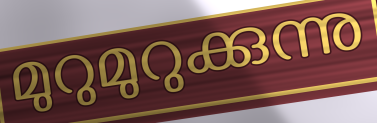
മുറുമുറുക്കുന്നു